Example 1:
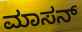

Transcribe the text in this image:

ಮಾಸನ್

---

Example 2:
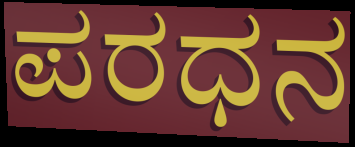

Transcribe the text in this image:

ಪರಧನ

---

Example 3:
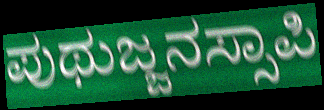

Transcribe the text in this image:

ಪುಥುಜ್ಜನಸ್ಸಾಪಿ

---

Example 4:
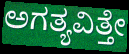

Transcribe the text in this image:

ಅಗತ್ಯವಿತ್ತೇ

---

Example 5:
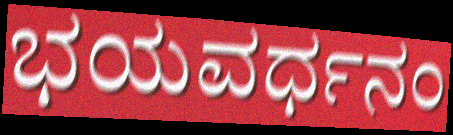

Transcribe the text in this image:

ಭಯವರ್ಧನಂ